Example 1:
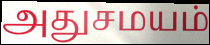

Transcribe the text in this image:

அதுசமயம்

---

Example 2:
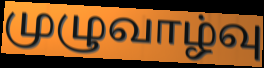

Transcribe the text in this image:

முழுவாழ்வு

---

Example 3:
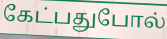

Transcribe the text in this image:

கேட்பதுபோல்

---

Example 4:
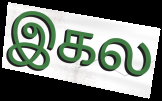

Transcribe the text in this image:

இகல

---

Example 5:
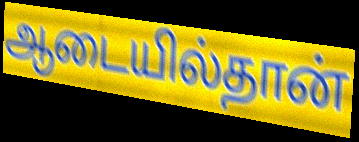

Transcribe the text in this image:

ஆடையில்தான்